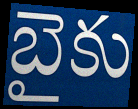
బైకు